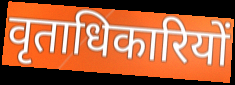
वृताधिकारियों